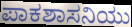
ಪಾಕಶಾಸನಿಯು